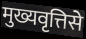
मुख्यवृत्तिसे